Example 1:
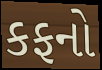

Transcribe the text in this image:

કફનો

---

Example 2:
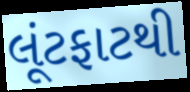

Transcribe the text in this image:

લૂંટફાટથી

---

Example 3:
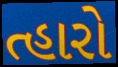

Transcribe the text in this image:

ત્હારો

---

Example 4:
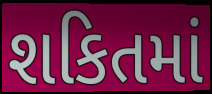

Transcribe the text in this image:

શકિતમાં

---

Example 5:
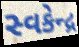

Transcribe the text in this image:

સ્વકેન્દ્ર